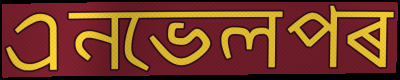
এনভেলপৰ